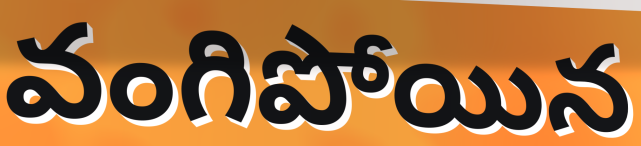
వంగిపోయిన